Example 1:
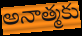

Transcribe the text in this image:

అనాత్మకు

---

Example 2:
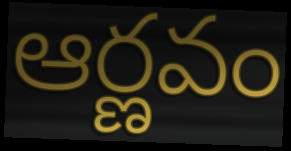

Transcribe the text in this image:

ఆర్ణవం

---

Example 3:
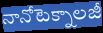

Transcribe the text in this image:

నానోటెక్నాలజీ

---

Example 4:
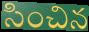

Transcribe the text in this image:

సించిన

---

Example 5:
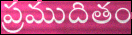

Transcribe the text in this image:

ప్రముదితం